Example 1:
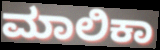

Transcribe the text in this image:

ಮಾಲಿಕಾ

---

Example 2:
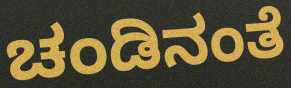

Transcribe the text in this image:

ಚಂಡಿನಂತೆ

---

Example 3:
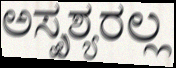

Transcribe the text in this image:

ಅಸ್ಪೃಶ್ಯರಲ್ಲ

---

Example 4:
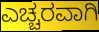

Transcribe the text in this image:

ಎಚ್ಚರವಾಗಿ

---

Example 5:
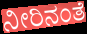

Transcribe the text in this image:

ನೀರಿನಂತೆ